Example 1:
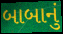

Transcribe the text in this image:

બાબાનું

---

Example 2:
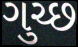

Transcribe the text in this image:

ગુચ્છ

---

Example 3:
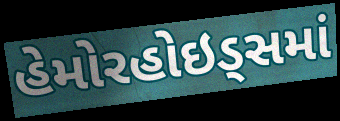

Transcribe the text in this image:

હેમોરહોઇડ્સમાં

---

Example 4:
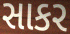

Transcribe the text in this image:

સાકર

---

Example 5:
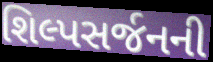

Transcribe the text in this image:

શિલ્પસર્જનની